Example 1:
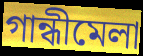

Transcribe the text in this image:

গান্ধীমেলা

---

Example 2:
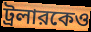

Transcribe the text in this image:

ট্রলারকেও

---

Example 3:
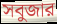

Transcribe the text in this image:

সবুজার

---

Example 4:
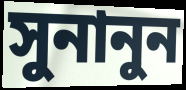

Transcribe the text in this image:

সুনানুন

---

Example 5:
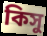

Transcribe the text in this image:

কিসু